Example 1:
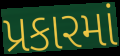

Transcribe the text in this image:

પ્રકારમાં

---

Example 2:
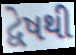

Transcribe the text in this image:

દ્વેષથી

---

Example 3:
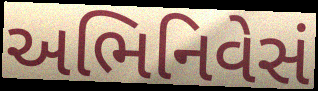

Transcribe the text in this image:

અભિનિવેસં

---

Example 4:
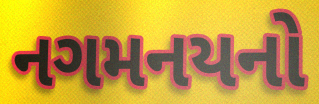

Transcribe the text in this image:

નગમનયનો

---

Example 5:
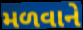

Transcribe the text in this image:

મળવાને